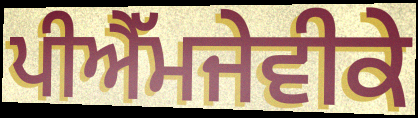
ਪੀਐੱਮਜੇਵੀਕੇ